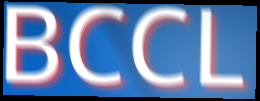
BCCL